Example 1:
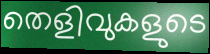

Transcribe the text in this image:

തെളിവുകളുടെ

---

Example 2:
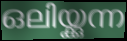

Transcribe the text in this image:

ഒലിയ്ക്കുന്ന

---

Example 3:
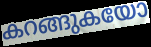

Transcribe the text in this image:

കറങ്ങുകയോ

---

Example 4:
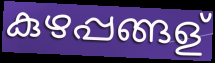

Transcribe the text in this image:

കുഴപ്പങ്ങള്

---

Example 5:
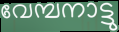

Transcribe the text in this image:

വേമ്പനാട്ടു